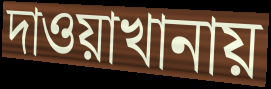
দাওয়াখানায়